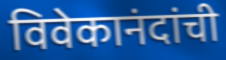
विवेकानंदांची